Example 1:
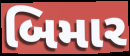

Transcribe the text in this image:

બિમાર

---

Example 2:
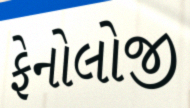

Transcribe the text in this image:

ફેનોલોજી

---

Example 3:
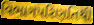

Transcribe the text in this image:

વિભાગપરિણતિથી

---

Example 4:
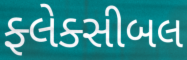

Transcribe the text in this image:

ફ્લેક્સીબલ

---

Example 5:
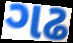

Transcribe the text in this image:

ગઢ